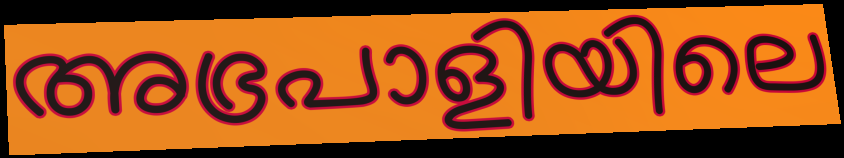
അഭ്രപാളിയിലെ